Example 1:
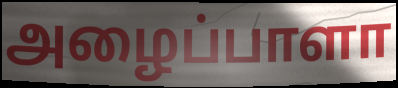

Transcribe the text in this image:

அழைப்பாளா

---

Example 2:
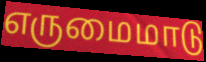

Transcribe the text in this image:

எருமைமாடு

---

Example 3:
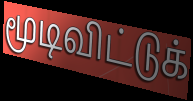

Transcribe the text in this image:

மூடிவிட்டுக்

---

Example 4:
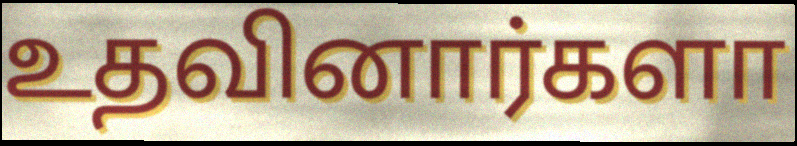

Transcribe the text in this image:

உதவினார்களா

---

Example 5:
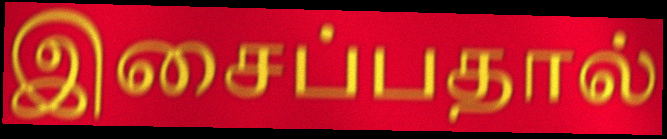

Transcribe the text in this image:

இசைப்பதால்